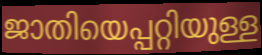
ജാതിയെപ്പറ്റിയുള്ള